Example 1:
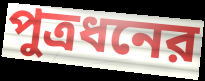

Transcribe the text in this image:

পুত্রধনের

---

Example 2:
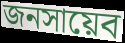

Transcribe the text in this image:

জনসায়েব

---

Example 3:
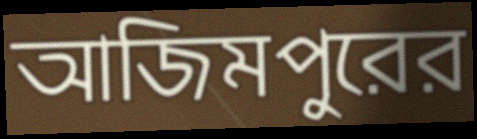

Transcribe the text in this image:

আজিমপুরের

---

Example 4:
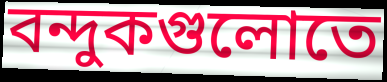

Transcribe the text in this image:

বন্দুকগুলোতে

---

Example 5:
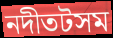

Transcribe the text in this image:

নদীতটসম